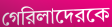
গেরিলাদেরকে